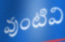
వుంటివి